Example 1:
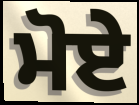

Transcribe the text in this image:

ਮੋਏ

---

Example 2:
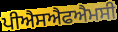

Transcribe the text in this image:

ਪੀਐਸਐਫਐਮਸੀ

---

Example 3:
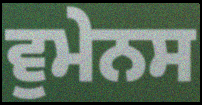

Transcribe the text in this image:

ਵੁਮੇਨਸ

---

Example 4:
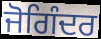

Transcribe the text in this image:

ਜੋਗਿੰਦਰ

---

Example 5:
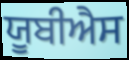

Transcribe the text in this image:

ਯੂਬੀਐਸ